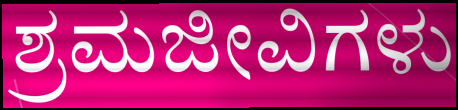
ಶ್ರಮಜೀವಿಗಳು